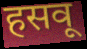
हसवू